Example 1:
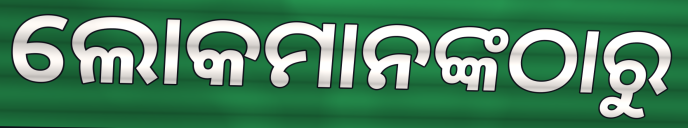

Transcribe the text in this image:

ଲୋକମାନଙ୍କଠାରୁ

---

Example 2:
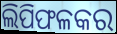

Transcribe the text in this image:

ଲିପିଫଳକର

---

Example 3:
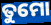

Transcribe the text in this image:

ତୁମୋ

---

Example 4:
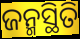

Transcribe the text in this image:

ଜନ୍ମସ୍ଥିତି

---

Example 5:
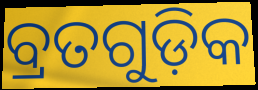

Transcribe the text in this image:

ବ୍ରତଗୁଡ଼ିକ